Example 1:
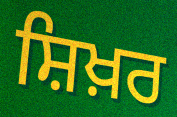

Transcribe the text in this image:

ਸ਼ਿਖ਼ਰ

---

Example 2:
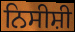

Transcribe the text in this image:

ਨਿਸੀਸ਼ੀ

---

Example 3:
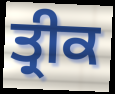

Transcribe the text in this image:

ਤ੍ਰੀਕ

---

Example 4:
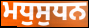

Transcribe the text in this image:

ਮਧੁਸੁਧਨ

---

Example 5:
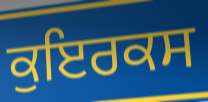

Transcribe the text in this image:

ਕੁਇਰਕਸ